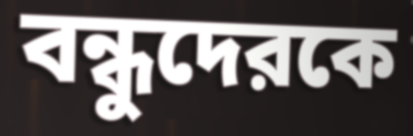
বন্ধুদেরকে